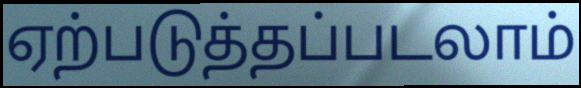
ஏற்படுத்தப்படலாம்